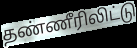
தண்ணீரிலிட்டு